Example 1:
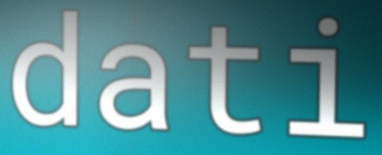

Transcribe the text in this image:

dati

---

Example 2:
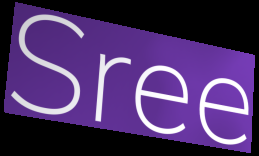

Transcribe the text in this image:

Sree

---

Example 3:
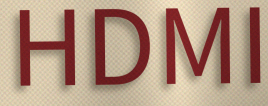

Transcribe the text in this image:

HDMI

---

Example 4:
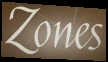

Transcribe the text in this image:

Zones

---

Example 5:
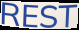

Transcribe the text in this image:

REST